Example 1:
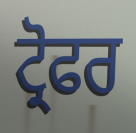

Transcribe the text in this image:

ਟ੍ਰੋਫਰ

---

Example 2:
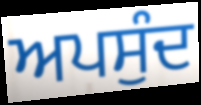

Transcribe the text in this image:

ਅਪਸੁੰਦ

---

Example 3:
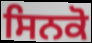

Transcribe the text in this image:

ਸਿਨਕੋ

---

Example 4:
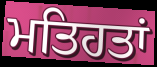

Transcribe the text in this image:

ਮਤਿਹਤਾਂ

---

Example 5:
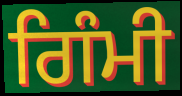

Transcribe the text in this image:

ਗਿੰਮੀ